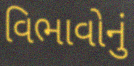
વિભાવોનું